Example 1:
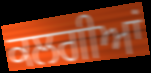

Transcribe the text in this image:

ਕਲਗੀਆਂ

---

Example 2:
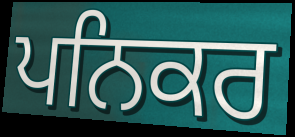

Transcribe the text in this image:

ਪਨਿਕਰ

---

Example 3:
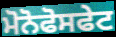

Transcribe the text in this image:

ਮੋਨੋਫੋਸਫੇਟ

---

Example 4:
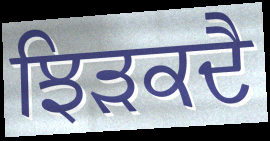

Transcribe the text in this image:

ਝਿੜਕਦੈ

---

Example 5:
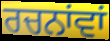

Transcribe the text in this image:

ਰਚਨਾਂਵਾਂ